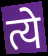
त्ये